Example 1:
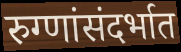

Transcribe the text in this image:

रुग्णांसंदर्भात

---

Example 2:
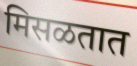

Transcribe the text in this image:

मिसळतात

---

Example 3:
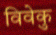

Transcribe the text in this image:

विवेकु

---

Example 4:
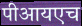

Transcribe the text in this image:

पीआयएच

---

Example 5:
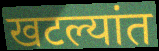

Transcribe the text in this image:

खटल्यांत